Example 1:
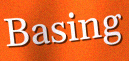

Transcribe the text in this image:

Basing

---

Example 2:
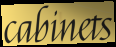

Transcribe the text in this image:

cabinets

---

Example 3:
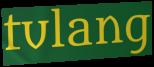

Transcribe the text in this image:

tulang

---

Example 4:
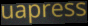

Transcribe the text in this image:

uapress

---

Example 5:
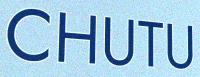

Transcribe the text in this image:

CHUTU